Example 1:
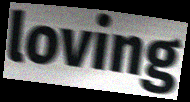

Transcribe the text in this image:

loving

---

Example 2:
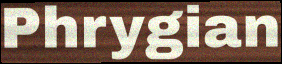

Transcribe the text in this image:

Phrygian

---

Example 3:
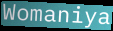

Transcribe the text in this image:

Womaniya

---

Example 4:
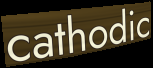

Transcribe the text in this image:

cathodic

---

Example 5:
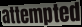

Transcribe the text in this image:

attempted